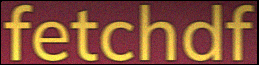
fetchdf